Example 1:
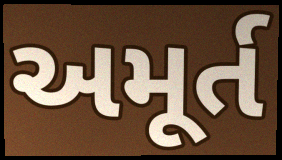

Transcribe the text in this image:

અમૂર્ત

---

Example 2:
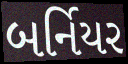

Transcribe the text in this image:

બર્નિયર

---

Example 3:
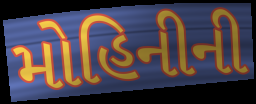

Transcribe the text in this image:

મોહિનીની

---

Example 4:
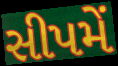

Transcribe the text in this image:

સીપમેં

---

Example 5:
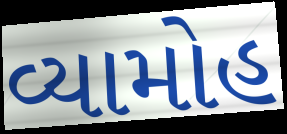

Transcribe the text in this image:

વ્યામોહ